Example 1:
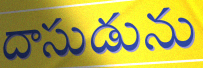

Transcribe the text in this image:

దాసుడును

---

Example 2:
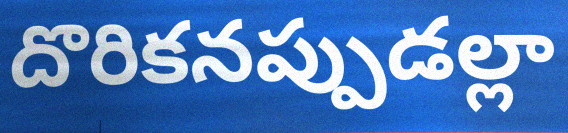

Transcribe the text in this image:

దొరికనప్పుడల్లా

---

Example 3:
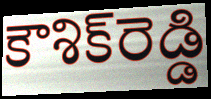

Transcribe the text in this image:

కౌశిక్‌రెడ్డి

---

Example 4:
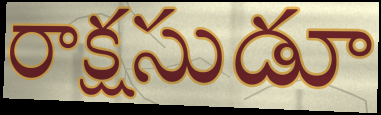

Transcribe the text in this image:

రాక్షసుడూ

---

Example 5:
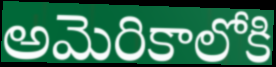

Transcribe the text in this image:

అమెరికాలోకి